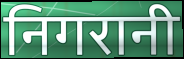
निगरानी